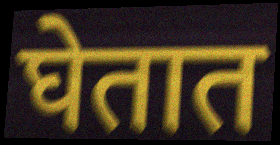
घेतात